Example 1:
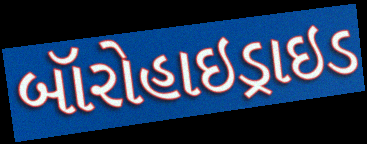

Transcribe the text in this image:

બૉરોહાઇડ્રાઇડ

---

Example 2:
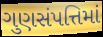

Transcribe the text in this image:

ગુણસંપત્તિમાં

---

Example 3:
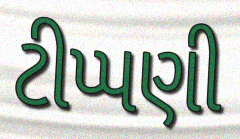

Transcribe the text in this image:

ટીપ્પણી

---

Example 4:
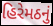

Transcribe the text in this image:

હિરેમઠનું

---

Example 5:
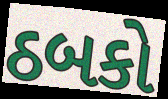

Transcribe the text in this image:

ઠબકો